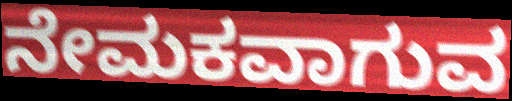
ನೇಮಕವಾಗುವ